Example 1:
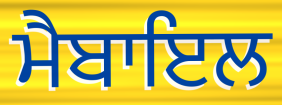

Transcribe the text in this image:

ਮੈਬਾਇਲ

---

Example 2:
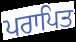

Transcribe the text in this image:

ਪਰਾਪਿਤ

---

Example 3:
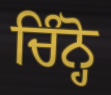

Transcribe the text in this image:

ਚਿੰਨ੍ਹੋ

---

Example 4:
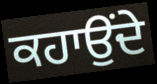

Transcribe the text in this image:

ਕਹਾਉਂਦੇ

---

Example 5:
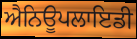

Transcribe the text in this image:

ਐਨਿਊਪਲਾਇਡੀ